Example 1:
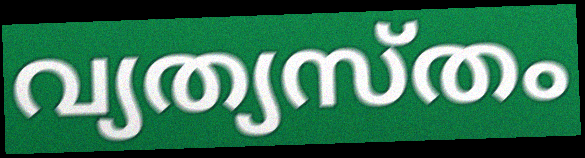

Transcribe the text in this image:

വ്യത്യസ്തം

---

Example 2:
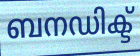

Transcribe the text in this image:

ബനഡിക്ട്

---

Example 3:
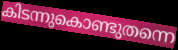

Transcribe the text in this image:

കിടന്നുകൊണ്ടുതന്നെ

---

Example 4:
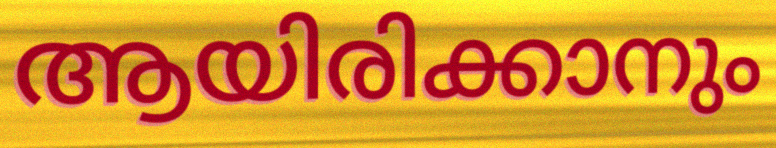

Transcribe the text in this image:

ആയിരിക്കാനും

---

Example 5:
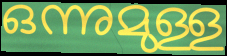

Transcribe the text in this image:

ഒന്നുമുള്ള